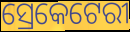
ସ୍ରେକେଟେରୀ